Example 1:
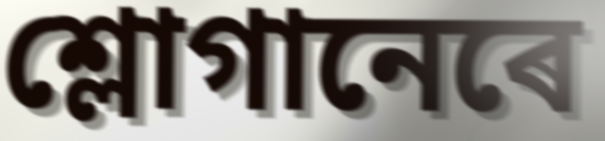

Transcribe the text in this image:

শ্লোগানেৰে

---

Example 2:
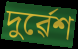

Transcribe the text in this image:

দুৰ্ৱেশ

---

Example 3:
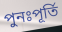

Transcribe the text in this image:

পুনঃপূৰ্তি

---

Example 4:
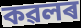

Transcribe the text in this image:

কৱলৰ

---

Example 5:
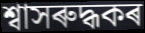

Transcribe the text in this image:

শ্বাসৰুদ্ধকৰ